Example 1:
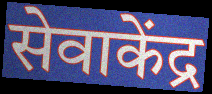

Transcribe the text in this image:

सेवाकेंद्र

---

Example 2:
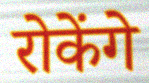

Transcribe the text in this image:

रोकेंगे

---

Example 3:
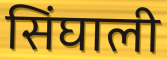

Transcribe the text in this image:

सिंघाली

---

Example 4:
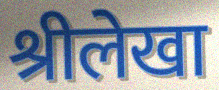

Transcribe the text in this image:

श्रीलेखा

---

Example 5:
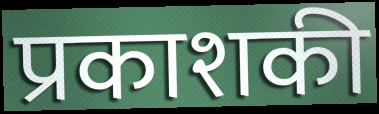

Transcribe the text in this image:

प्रकाशकी